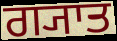
ਗ੍ਯਾਤ